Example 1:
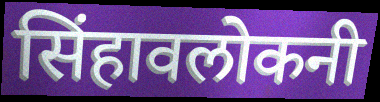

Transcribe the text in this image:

सिंहावलोकनी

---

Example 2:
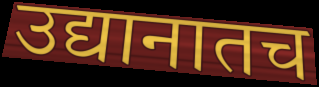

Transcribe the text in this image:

उद्यानातच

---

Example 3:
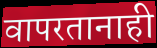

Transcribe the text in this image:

वापरतानाही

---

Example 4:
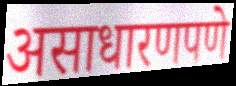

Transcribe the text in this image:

असाधारणपणे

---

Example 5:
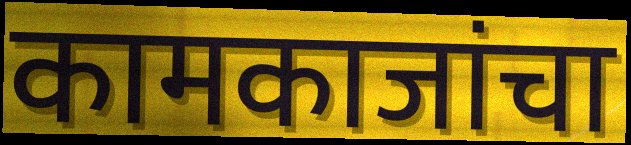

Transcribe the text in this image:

कामकाजांचा